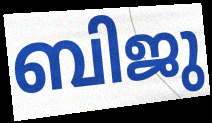
ബിജു